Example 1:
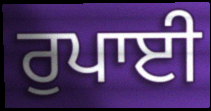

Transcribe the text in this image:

ਰੁਪਾਈ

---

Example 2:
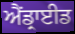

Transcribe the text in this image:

ਐਂਡ੍ਰਾਈਡ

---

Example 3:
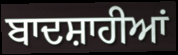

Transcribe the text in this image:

ਬਾਦਸ਼ਾਹੀਆਂ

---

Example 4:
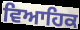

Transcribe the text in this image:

ਵਿਆਹਿਕ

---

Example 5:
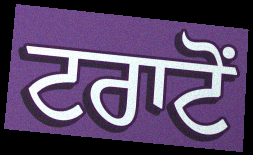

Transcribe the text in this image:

ਟਰਾਟੋਂ